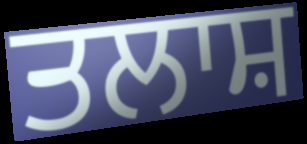
ਤਲਾਸ਼